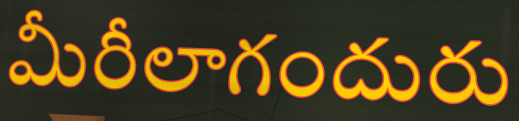
మీరీలాగందురు